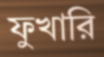
ফুখারি